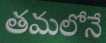
తమలోనే